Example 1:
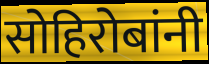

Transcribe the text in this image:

सोहिरोबांनी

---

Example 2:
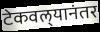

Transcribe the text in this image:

टेकवल्यानंतर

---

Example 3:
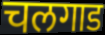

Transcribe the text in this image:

चलगाड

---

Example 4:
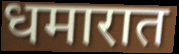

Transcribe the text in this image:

धमारात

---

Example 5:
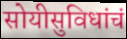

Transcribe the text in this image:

सोयीसुविधांचं